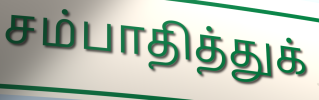
சம்பாதித்துக்